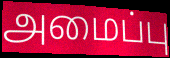
அமைப்பு